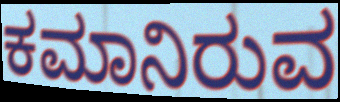
ಕಮಾನಿರುವ